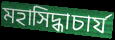
মহাসিদ্ধাচার্য